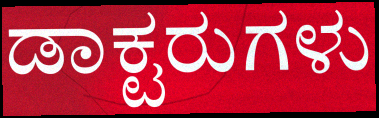
ಡಾಕ್ಟರುಗಳು